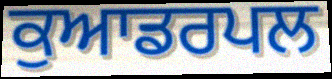
ਕੁਆਡਰਪਲ